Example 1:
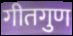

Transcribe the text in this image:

गीतगुण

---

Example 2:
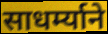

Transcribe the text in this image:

साधर्म्याने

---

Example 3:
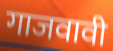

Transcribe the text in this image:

गाजवावी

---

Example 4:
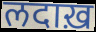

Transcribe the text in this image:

लदाख़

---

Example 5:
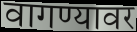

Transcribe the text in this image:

वागण्यावर